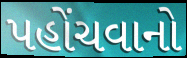
પહોંચવાનો